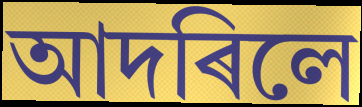
আদৰিলে